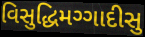
વિસુદ્ધિમગ્ગાદીસુ